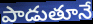
పాడుతూనే